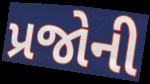
પ્રજોની